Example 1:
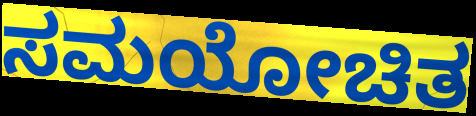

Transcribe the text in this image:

ಸಮಯೋಚಿತ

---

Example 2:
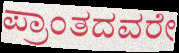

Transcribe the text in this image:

ಪ್ರಾಂತದವರೇ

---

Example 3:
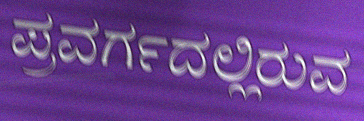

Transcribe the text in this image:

ಪ್ರವರ್ಗದಲ್ಲಿರುವ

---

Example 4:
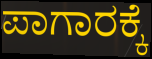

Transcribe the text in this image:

ಪಾಗಾರಕ್ಕೆ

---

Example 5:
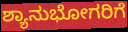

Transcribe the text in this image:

ಶ್ಯಾನುಭೋಗರಿಗೆ